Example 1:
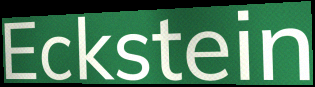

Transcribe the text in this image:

Eckstein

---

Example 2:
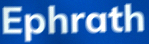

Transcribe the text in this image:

Ephrath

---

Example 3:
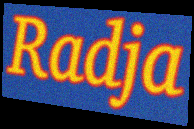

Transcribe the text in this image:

Radja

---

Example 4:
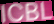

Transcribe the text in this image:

ICBL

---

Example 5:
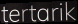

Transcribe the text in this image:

tertarik